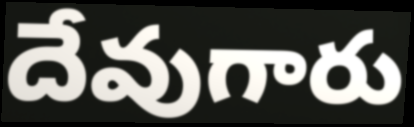
దేవుగారు